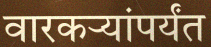
वारकऱ्यांपर्यंत